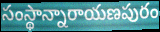
సంస్థాన్నారాయణపురం